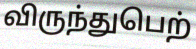
விருந்துபெற்